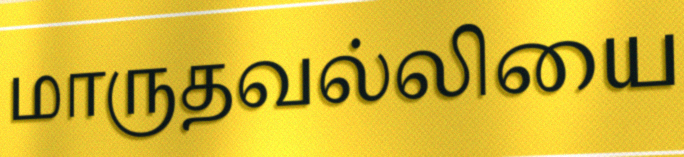
மாருதவல்லியை